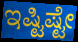
ಇಷ್ಟಿಷ್ಟೇ